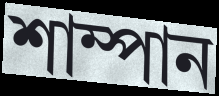
শাম্পান